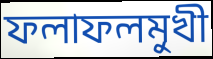
ফলাফলমুখী